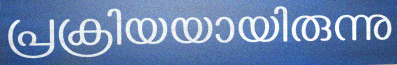
പ്രക്രിയയായിരുന്നു